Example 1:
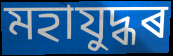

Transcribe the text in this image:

মহাযুদ্ধৰ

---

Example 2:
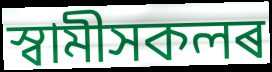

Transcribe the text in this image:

স্বামীসকলৰ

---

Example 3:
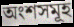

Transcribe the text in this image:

অংশসমূহ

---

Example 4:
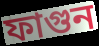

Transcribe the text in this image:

ফাগুন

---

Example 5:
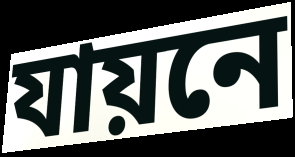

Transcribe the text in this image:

যায়নে